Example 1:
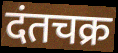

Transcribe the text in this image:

दंतचक्र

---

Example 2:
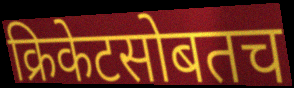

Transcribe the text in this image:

क्रिकेटसोबतच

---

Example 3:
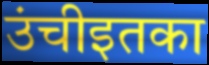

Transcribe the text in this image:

उंचीइतका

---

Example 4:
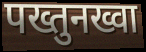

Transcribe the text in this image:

पख्तुनख्वा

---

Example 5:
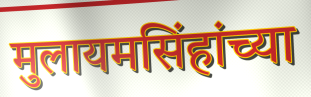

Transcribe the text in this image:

मुलायमसिंहांच्या